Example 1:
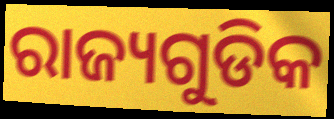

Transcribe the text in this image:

ରାଜ୍ୟଗୁଡିକ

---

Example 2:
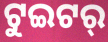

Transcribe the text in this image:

ଟୁଇଟର୍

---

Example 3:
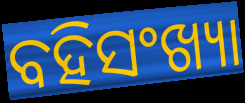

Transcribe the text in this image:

ବହିସଂଖ୍ୟା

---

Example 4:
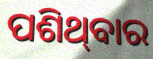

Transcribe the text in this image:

ପଶିଥ୍‌ବାର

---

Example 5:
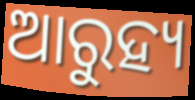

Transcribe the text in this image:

ଆରୁହ୍ୟ